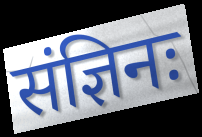
संज्ञिनः